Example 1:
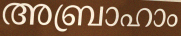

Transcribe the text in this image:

അബ്രാഹാം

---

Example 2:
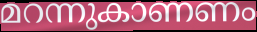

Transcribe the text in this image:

മറന്നുകാണണം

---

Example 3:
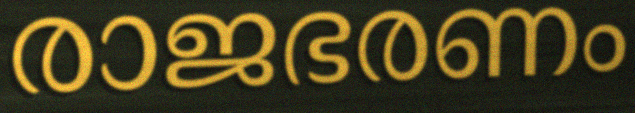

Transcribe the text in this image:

രാജഭരണം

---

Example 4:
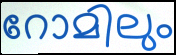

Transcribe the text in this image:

റോമിലും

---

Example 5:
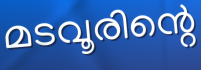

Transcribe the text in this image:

മടവൂരിന്റെ